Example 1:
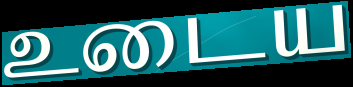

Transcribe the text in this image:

உடைய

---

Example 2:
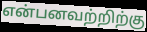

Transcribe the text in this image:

என்பனவற்றிற்கு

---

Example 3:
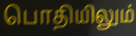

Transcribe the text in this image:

பொதியிலும்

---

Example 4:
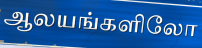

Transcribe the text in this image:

ஆலயங்களிலோ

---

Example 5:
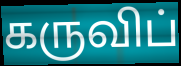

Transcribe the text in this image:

கருவிப்